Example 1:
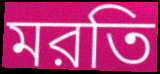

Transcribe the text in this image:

মরতি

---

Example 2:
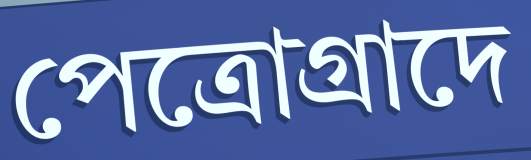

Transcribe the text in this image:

পেত্রোগ্রাদে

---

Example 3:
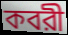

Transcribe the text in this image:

কবরী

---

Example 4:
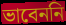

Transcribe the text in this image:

ভাবেননি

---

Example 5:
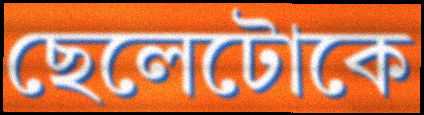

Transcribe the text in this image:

ছেলেটোকে